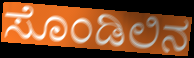
ಸೊಂಡಿಲಿನ